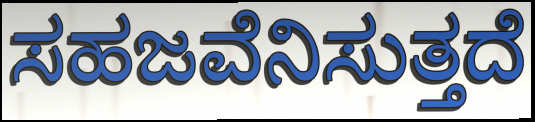
ಸಹಜವೆನಿಸುತ್ತದೆ